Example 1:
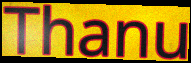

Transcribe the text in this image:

Thanu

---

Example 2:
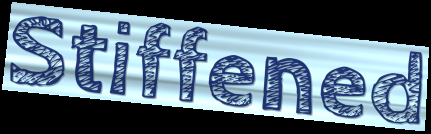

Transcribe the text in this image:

Stiffened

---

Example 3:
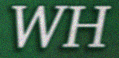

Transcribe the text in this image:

WH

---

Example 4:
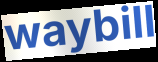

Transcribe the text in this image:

waybill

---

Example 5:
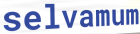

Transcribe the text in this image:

selvamum